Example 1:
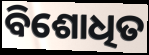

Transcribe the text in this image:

ବିଶୋଧିତ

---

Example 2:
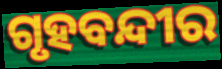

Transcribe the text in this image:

ଗୃହବନ୍ଦୀର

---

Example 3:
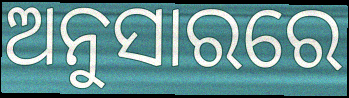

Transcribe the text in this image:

ଅନୁସାରରେ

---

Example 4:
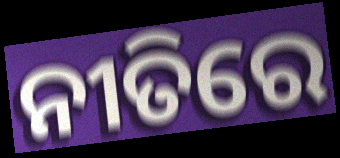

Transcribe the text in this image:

ନୀତିରେ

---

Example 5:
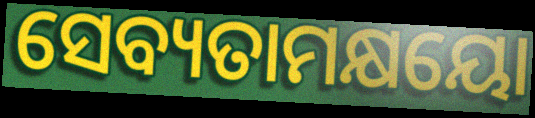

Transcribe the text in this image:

ସେବ୍ୟତାମକ୍ଷୟୋ